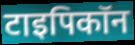
टाइपिकॉन